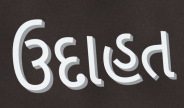
ઉદાહત